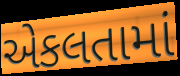
એકલતામાં